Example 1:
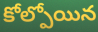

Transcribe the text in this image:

కోల్పోయిన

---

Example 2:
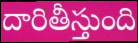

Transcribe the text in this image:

దారితీస్తుంది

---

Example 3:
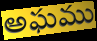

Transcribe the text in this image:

అఘము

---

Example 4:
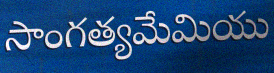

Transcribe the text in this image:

సాంగత్యమేమియు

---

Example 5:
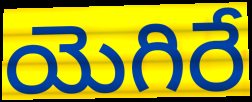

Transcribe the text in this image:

యెగిరే